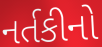
નર્તકીનો